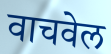
वाचवेल